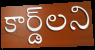
కార్డ్‌లని